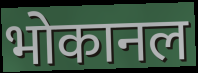
भोकानल